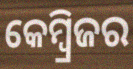
କେମ୍ବ୍ରିଜର